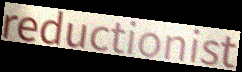
reductionist